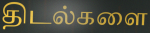
திடல்களை